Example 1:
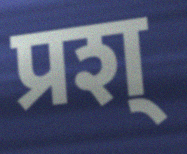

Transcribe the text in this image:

प्रश्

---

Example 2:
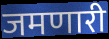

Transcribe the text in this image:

जमणारी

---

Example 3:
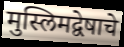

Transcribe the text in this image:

मुस्लिमद्वेषाचे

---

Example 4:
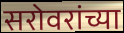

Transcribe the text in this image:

सरोवरांच्या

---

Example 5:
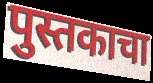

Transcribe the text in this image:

पुस्तकाचा